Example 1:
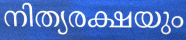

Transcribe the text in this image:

നിത്യരക്ഷയും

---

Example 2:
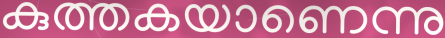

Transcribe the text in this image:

കുത്തകയാണെന്നു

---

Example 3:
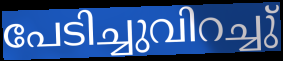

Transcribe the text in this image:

പേടിച്ചുവിറച്ചു്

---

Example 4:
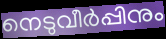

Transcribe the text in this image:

നെടുവീർപ്പിനും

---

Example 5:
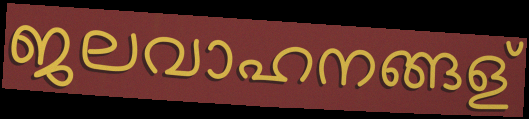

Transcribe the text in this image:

ജലവാഹനങ്ങള്